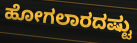
ಹೋಗಲಾರದಷ್ಟು